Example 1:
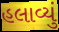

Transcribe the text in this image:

હલાવ્યું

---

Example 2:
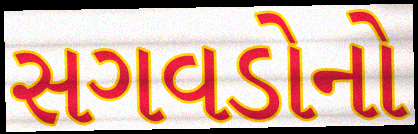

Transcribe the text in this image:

સગવડોનો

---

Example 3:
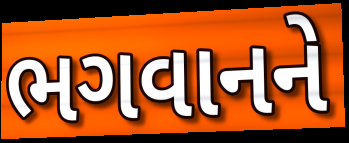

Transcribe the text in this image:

ભગવાનને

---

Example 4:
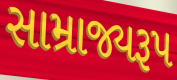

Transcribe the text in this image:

સામ્રાજ્યરૂપ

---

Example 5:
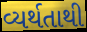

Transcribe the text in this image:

વ્યર્થતાથી